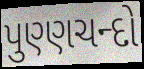
પુણ્ણચન્દો